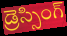
డ్రెస్సింగ్